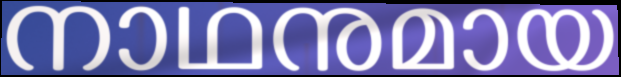
നാഥനുമായ